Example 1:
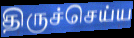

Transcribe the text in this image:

திருச்செய்ய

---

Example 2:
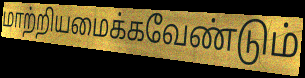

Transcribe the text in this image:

மாற்றியமைக்கவேண்டும்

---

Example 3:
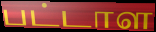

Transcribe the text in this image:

பட்டாள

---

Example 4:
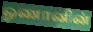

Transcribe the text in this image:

ஓணானின்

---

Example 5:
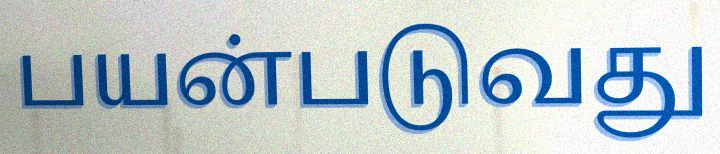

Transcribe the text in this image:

பயன்படுவது